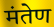
मंतेण